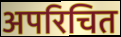
अपरिचित